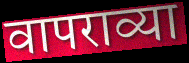
वापराव्या